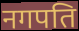
नगपति